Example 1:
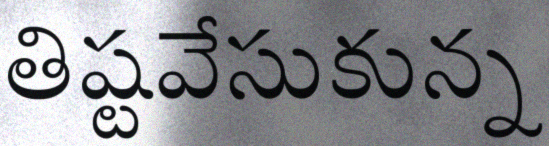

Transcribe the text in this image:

తిష్టవేసుకున్న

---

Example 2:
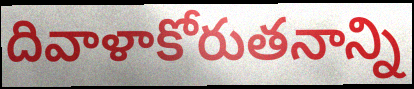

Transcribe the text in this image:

దివాళాకోరుతనాన్ని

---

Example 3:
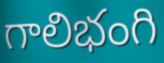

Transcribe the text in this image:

గాలిభంగి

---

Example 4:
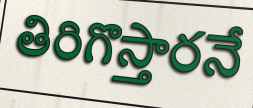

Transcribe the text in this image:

తిరిగొస్తారనే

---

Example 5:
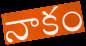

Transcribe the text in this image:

నాకం